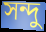
সন্দু